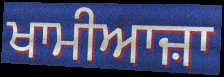
ਖਾਮੀਆਜ਼ਾ